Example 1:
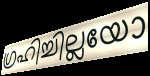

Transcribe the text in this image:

ഗ്രഹിച്ചില്ലയോ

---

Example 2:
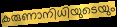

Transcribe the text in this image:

കരുണാനിധിയുടെയും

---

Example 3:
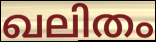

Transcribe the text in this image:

ഖലിതം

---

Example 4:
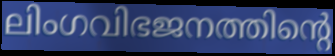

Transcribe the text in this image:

ലിംഗവിഭജനത്തിന്റെ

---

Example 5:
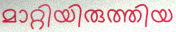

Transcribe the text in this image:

മാറ്റിയിരുത്തിയ